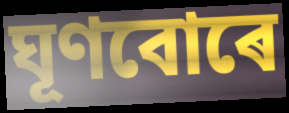
ঘূণবোৰে